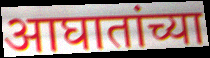
आघातांच्या